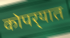
कोपर्‍यात